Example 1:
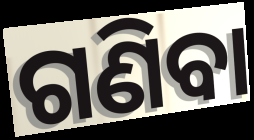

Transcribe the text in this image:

ଗଣିବା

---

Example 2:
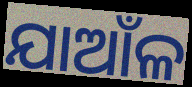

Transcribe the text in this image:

ଯାଆଁଳ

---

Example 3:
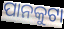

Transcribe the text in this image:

ପାନକୁଟା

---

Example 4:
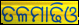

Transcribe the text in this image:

ତଳମାଢିଓ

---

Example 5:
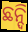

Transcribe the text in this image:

ଛନ୍ଦି